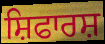
ਸ਼ਿਫਾਰਸ਼